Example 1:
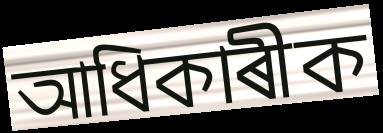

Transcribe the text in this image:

আধিকাৰীক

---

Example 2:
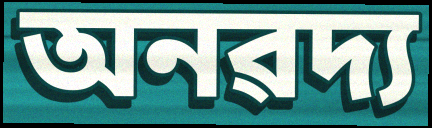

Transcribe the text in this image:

অনৱদ্য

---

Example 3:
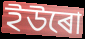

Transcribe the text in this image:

ইউৰো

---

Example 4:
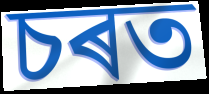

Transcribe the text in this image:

চৰত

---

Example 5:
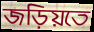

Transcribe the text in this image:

জড়িয়তে